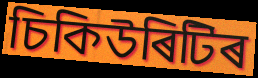
চিকিউৰিটিৰ